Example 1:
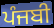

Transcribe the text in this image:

ਪੰਜਬੀ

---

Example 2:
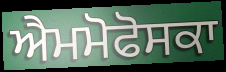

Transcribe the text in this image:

ਐਮਮੋਫੋਸਕਾ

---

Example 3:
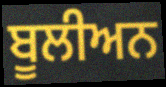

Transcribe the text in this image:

ਬੂਲੀਅਨ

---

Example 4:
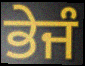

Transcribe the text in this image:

ਭੇਜੰ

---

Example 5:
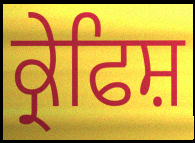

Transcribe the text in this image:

ਕ੍ਰੇਫਿਸ਼